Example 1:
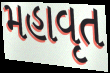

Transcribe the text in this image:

મહાવૃત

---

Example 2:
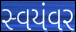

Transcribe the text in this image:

સ્વયંવર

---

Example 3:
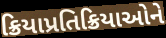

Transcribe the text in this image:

ક્રિયાપ્રતિક્રિયાઓને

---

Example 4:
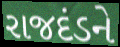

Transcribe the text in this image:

રાજદંડને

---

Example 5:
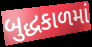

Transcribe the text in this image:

બુદ્ધકાળમાં